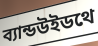
ব্যান্ডউইডথে